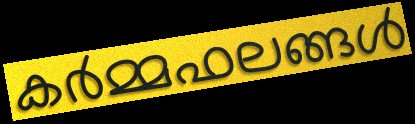
കർമ്മഫലങ്ങൾ